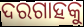
ଦରଗାହକୁ